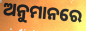
ଅନୁମାନରେ